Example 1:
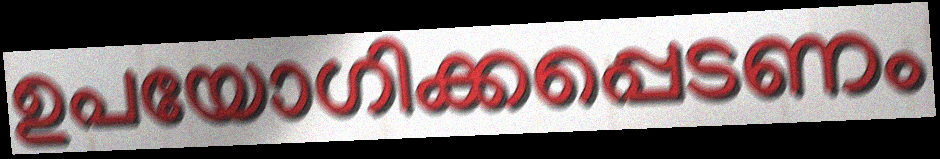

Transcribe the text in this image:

ഉപയോഗിക്കപ്പെടണം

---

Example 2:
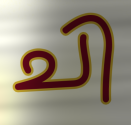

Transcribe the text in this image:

ചി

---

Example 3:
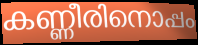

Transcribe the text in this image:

കണ്ണീരിനൊപ്പം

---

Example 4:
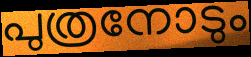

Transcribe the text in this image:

പുത്രനോടും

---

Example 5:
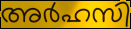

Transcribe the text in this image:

അർഹസി